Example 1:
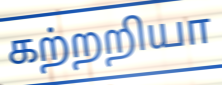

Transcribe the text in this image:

கற்றறியா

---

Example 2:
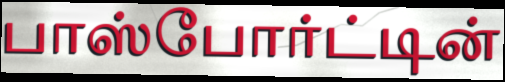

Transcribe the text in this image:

பாஸ்போர்ட்டின்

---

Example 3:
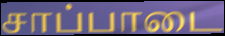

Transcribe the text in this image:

சாப்பாடை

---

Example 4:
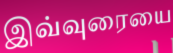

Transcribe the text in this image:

இவ்வுரையை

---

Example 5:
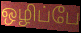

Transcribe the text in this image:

ஒழிப்பே